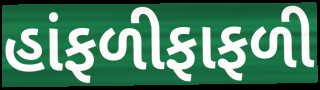
હાંફળીફાફળી